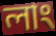
লাং